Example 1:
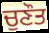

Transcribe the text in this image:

ਚੁਣੌਤ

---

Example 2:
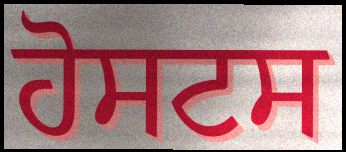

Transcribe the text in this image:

ਹੋਸਟਸ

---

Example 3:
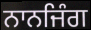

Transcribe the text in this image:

ਨਾਨਜਿੰਗ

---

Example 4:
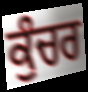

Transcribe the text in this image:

ਕੁੰਚਰ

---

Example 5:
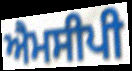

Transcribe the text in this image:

ਐਮਸੀਪੀ